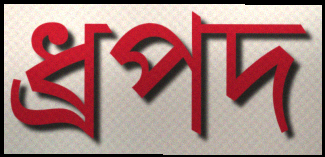
ধ্রপদ